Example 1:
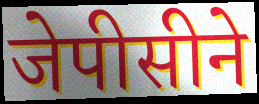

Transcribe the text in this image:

जेपीसीने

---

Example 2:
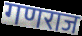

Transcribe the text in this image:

गणराज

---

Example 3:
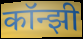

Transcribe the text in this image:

कॉन्झी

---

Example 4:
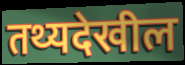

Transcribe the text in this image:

तथ्यदेखील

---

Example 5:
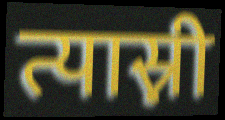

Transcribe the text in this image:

त्यास्नी